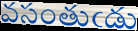
వసంతుఁడు